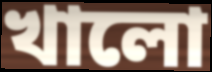
খালো